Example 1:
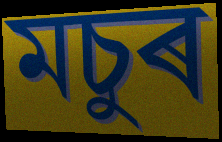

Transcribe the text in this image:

মচুৰ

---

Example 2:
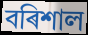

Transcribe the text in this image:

বৰিশাল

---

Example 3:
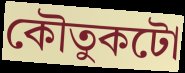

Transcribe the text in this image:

কৌতুকটো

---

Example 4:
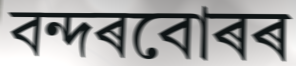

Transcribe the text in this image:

বন্দৰবোৰৰ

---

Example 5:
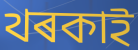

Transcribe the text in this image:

থৰকাই